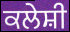
ਕਲੇਸ਼ੀ